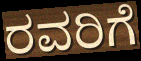
ರವರಿಗೆ